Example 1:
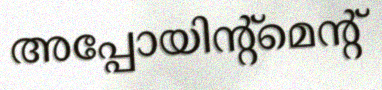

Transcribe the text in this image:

അപ്പോയിന്റ്മെന്റ്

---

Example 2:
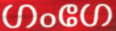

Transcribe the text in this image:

ഗംഗേ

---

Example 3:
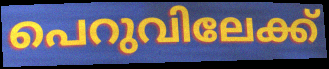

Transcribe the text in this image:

പെറുവിലേക്ക്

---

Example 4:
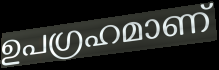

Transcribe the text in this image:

ഉപഗ്രഹമാണ്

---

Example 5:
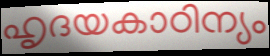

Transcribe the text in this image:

ഹൃദയകാഠിന്യം